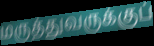
மருத்துவருக்குப்